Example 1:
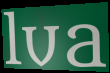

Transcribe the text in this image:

lua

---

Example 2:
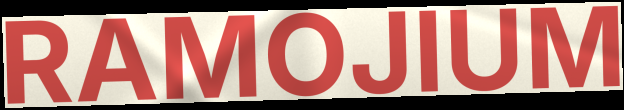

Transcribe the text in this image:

RAMOJIUM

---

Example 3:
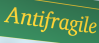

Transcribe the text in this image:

Antifragile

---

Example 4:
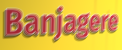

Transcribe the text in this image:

Banjagere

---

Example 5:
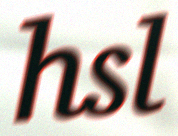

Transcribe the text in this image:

hsl